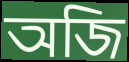
অজি